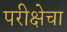
परीक्षेचा